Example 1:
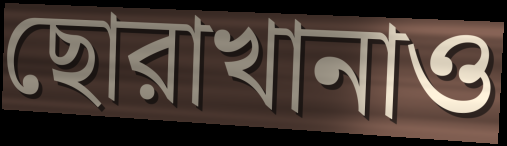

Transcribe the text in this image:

ছোরাখানাও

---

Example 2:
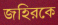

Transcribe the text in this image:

জহিরকে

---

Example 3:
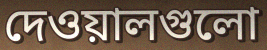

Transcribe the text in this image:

দেওয়ালগুলো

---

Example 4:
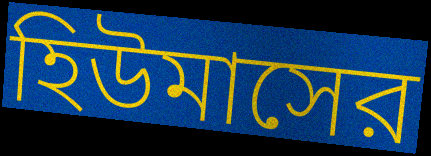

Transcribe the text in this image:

হিউমাসের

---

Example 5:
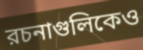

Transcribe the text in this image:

রচনাগুলিকেও